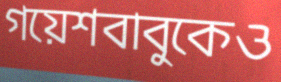
গয়েশবাবুকেও